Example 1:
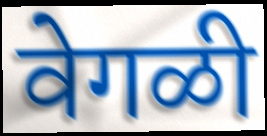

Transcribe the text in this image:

वेगळी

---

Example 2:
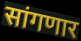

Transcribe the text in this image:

सांगणार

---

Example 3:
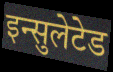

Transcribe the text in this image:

इन्सुलेटेड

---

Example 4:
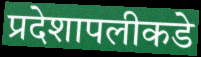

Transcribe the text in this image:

प्रदेशापलीकडे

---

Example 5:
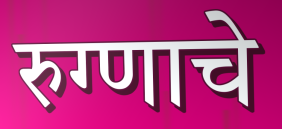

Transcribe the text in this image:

रुग्‍णाचे